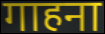
गाहना